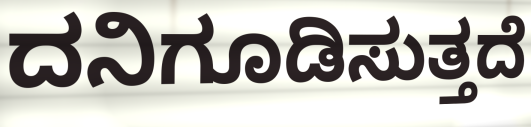
ದನಿಗೂಡಿಸುತ್ತದೆ